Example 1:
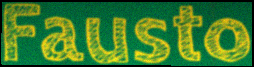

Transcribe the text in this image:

Fausto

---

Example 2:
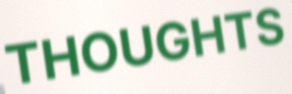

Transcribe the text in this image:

THOUGHTS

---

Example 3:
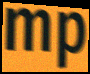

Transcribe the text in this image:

mp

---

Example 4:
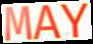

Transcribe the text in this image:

MAY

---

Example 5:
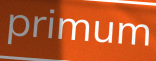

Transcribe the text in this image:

primum